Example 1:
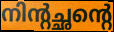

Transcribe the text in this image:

നിന്റച്ഛന്റെ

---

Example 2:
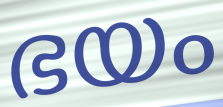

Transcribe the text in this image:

ഭയം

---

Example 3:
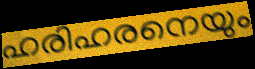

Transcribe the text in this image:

ഹരിഹരനെയും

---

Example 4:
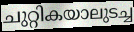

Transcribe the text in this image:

ചുറ്റികയാലുടച്ച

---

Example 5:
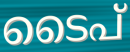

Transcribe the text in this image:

ടൈപ്